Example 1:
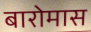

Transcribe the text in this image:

बारोमास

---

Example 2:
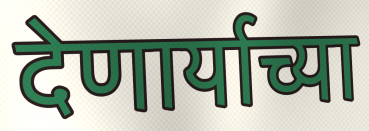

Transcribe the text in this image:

देणार्याच्या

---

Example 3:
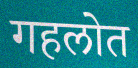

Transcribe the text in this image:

गहलोत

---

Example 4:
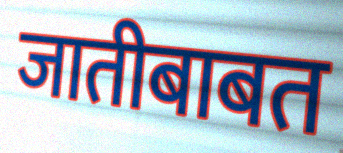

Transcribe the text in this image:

जातीबाबत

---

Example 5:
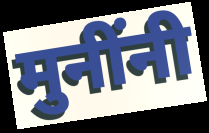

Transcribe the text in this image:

मुनींनी